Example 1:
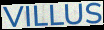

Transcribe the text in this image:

VILLUS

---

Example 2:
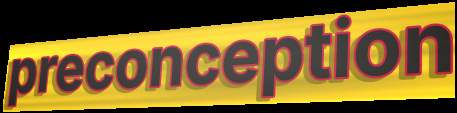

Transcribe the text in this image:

preconception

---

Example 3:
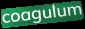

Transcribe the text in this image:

coagulum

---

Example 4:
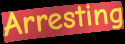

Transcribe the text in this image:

Arresting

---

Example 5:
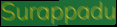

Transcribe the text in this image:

Surappadu